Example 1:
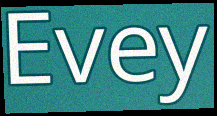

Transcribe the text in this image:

Evey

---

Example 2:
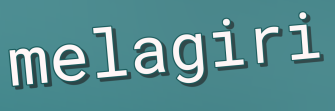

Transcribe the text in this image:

melagiri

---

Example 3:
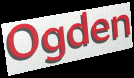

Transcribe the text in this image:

Ogden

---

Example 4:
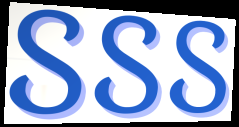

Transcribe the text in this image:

SSS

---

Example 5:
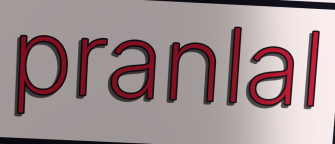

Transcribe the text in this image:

pranlal